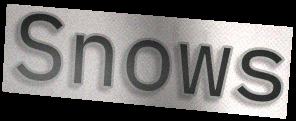
Snows